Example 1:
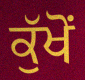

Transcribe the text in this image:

ਕੁੱਖੋਂ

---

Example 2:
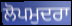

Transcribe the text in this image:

ਲੋਪਮੁਦਰਾ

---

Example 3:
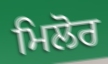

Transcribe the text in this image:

ਮਿਲੋਰ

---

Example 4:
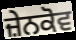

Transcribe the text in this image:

ਜ਼ੇਨਕੋਵ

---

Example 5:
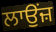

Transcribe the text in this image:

ਲਾਉਂਜ਼